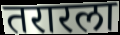
तरारला